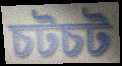
চটচট